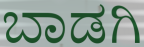
ಬಾಡಗಿ